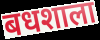
बधशाला